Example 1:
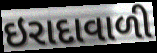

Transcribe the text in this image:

ઇરાદાવાળી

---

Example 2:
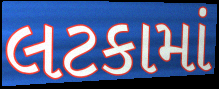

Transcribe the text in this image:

લટકામાં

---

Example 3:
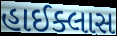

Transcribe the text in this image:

હાઈક્લાસ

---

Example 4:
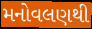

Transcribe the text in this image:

મનોવલણથી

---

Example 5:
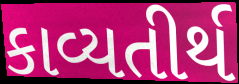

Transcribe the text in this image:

કાવ્યતીર્થ